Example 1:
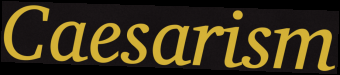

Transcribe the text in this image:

Caesarism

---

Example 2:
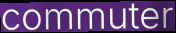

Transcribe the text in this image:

commuter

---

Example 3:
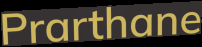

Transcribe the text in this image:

Prarthane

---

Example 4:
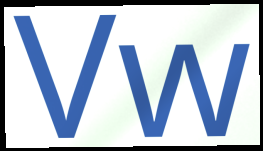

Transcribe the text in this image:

Vw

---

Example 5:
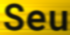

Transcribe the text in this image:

Seu